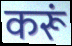
करूं